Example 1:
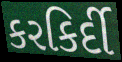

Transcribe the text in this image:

કરકિર્દી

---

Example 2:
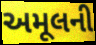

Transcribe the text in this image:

અમૂલની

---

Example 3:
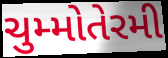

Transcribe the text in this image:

ચુમ્મોતેરમી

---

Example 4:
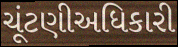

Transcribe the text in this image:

ચૂંટણીઅધિકારી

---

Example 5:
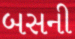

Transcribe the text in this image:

બસની